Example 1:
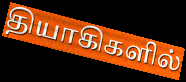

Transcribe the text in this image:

தியாகிகளில்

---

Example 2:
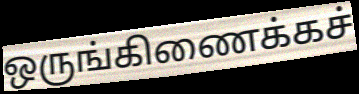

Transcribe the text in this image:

ஒருங்கிணைக்கச்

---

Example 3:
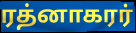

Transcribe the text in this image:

ரத்னாகரர்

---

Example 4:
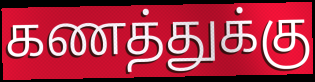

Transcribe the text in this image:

கணத்துக்கு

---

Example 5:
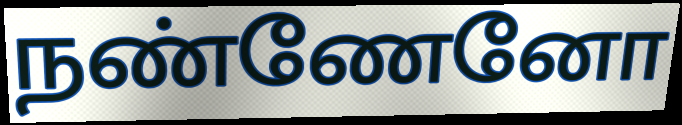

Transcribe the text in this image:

நண்ணேனோ